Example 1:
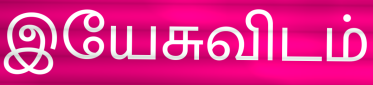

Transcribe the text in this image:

இயேசுவிடம்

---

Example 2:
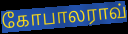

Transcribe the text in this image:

கோபாலராவ்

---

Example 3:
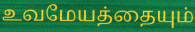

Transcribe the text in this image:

உவமேயத்தையும்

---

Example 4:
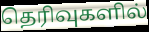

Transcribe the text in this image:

தெரிவுகளில்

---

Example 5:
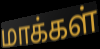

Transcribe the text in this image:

மாக்கள்